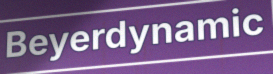
Beyerdynamic